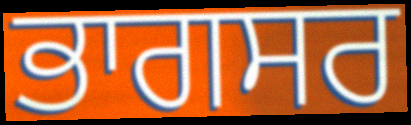
ਭਾਗਸਰ